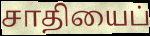
சாதியைப்